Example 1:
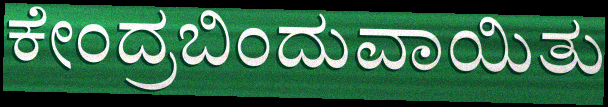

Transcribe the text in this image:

ಕೇಂದ್ರಬಿಂದುವಾಯಿತು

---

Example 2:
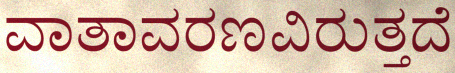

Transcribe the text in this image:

ವಾತಾವರಣವಿರುತ್ತದೆ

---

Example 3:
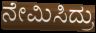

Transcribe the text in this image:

ನೇಮಿಸಿದ್ರು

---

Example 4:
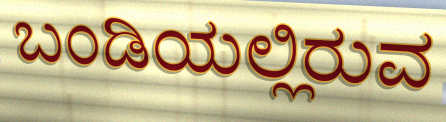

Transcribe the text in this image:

ಬಂಡಿಯಲ್ಲಿರುವ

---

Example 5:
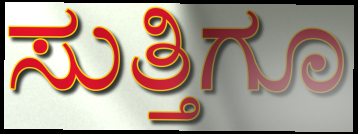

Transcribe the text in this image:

ಸುತ್ತಿಗೂ